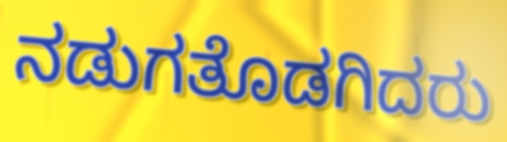
ನಡುಗತೊಡಗಿದರು